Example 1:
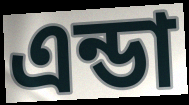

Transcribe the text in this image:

এন্ডা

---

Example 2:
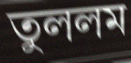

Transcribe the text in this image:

তুললম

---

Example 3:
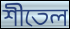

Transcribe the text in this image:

শীতেল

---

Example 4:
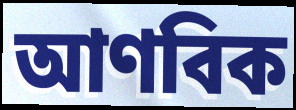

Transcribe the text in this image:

আণবিক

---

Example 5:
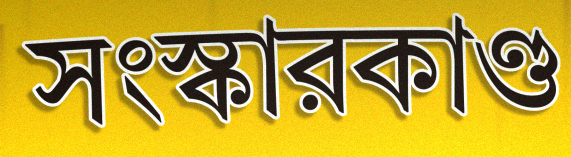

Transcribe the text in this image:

সংস্কারকাণ্ড